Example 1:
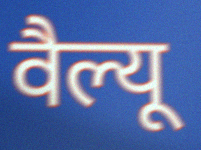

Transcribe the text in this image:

वैल्यू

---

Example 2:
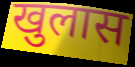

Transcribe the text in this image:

खुलास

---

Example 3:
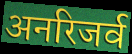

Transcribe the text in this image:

अनरिजर्व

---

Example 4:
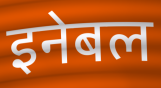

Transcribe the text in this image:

इनेबल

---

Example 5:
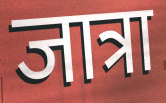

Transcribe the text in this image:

जात्रा